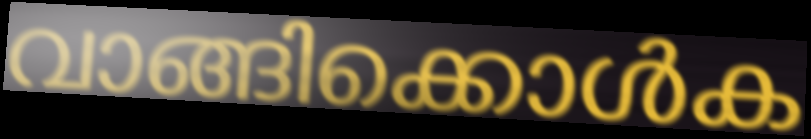
വാങ്ങിക്കൊൾക